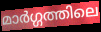
മാർഗ്ഗത്തിലെ